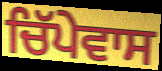
ਚਿੱਪੇਵਾਸ